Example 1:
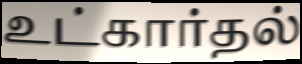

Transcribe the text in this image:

உட்கார்தல்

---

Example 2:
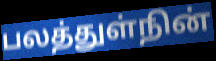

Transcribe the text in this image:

பலத்துள்நின்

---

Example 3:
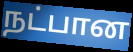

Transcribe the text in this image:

நட்பான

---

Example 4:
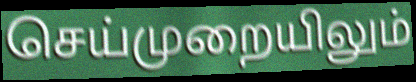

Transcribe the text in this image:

செய்முறையிலும்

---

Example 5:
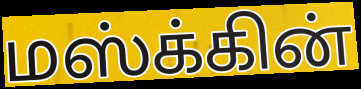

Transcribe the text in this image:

மஸ்க்கின்